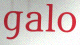
galo